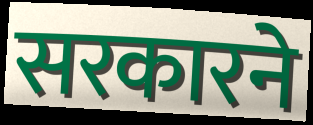
सरकारने